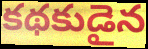
కథకుడైన